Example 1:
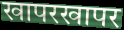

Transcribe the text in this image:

खापरखापर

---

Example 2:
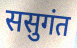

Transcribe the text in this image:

ससुगंत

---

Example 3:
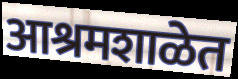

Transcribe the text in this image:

आश्रमशाळेत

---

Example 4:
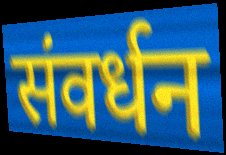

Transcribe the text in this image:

संवर्धन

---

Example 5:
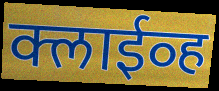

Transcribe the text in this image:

क्लाईव्ह